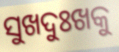
ସୁଖଦୁଃଖକୁ